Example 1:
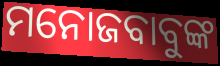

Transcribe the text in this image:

ମନୋଜବାବୁଙ୍କ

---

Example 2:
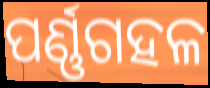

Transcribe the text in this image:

ପର୍ଣ୍ଣଗହଳ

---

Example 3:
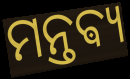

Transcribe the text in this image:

ମନ୍ତଵ୍ୟ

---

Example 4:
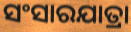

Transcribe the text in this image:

ସଂସାରଯାତ୍ରା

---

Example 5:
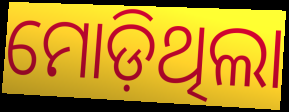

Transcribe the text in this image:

ମୋଡ଼ିଥିଲା